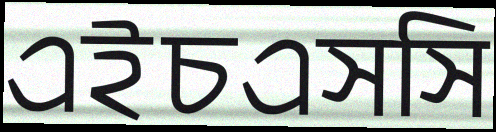
এইচএসসি